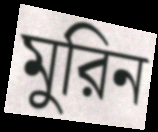
মুরিন